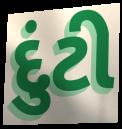
દુંટી